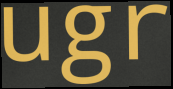
ugr